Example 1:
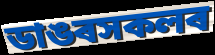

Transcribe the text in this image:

ডাঙৰসকলৰ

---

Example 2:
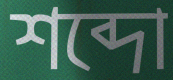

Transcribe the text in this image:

শব্দো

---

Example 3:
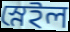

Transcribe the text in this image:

স্নেইল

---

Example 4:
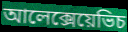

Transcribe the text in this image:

আলেক্সেয়েভিচ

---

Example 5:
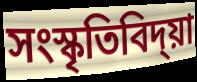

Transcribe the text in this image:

সংস্কৃতিবিদ্য়া